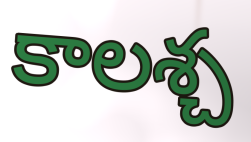
కాలశ్చ